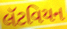
લૅટવિયન